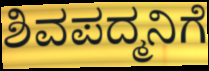
ಶಿವಪದ್ಮನಿಗೆ